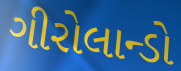
ગીરોલાન્ડો